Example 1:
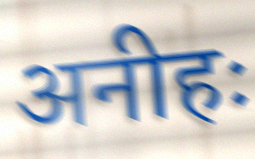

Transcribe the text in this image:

अनीहः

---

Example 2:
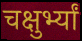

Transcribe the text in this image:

चक्षुर्भ्यां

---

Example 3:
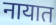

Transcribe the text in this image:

नायात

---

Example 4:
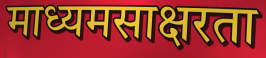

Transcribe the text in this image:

माध्यमसाक्षरता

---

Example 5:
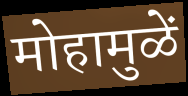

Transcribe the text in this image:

मोहामुळें